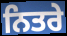
ਨਿਤਰੇ